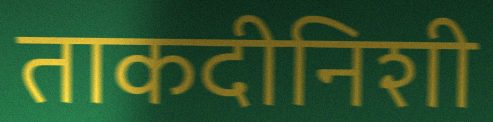
ताकदीनिशी